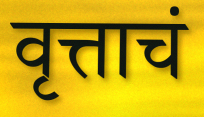
वृत्ताचं